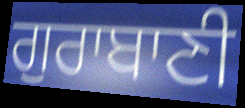
ਗੁਰਾਬਾਣੀ